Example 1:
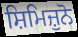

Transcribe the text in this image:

ਸ਼ਿਮਿਜ਼ੁਨੋ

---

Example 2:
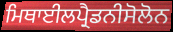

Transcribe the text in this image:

ਮਿਥਾਈਲਪ੍ਰੈਡਨੀਸੋਲੋਨ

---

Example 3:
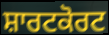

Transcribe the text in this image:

ਸ਼ਾਰਟਕੋਰਟ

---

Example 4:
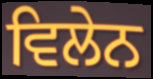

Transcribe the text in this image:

ਵਿਲੇਨ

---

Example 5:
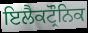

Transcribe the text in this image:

ਇਲੈਕਟ੍ਰੌਨਿਕ